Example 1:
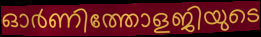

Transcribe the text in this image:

ഓർണിത്തോളജിയുടെ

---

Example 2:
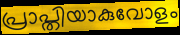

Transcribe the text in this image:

പ്രാപ്തിയാകുവോളം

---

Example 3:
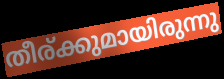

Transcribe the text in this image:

തീര്ക്കുമായിരുന്നു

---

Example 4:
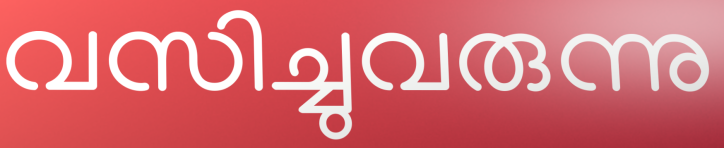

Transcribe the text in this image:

വസിച്ചുവരുന്നു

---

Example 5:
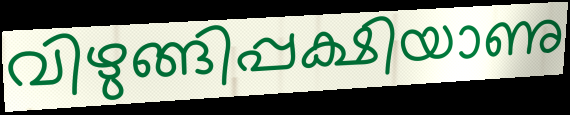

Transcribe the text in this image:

വിഴുങ്ങിപ്പക്ഷിയാണു